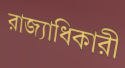
রাজ্যাধিকারী